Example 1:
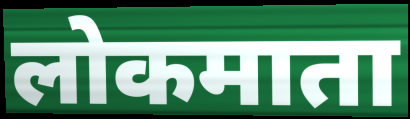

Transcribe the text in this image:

लोकमाता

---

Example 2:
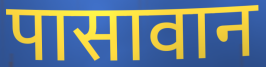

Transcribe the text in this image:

पासावान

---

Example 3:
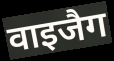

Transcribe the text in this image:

वाइजैग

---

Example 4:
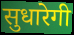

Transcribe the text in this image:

सुधारेगी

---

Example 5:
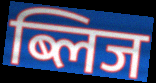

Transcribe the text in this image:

ब्लिज